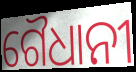
ଗୈଧାନୀ